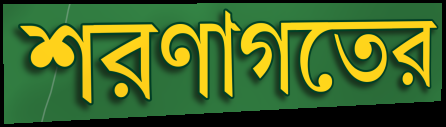
শরণাগতের